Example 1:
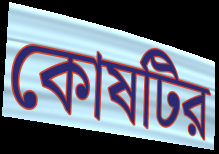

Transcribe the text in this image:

কোষটির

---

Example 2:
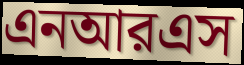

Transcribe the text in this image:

এনআরএস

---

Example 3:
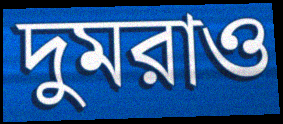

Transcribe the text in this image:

দুমরাও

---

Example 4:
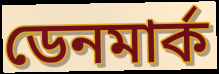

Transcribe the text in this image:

ডেনমার্ক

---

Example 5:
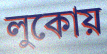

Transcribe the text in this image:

লুকোয়